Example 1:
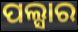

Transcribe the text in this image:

ପଲ୍ସାର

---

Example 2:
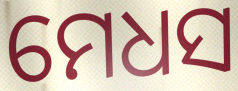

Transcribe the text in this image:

ମେଧସ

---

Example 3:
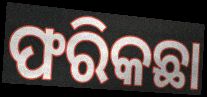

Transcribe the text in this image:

ଫରିକଛା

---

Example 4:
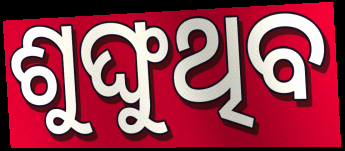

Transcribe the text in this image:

ଶୁଙ୍ଘୁଥିବ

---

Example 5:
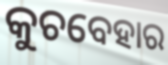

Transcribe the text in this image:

କୁଚବେହାର